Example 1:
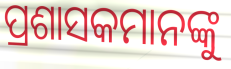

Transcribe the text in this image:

ପ୍ରଶାସକମାନଙ୍କୁ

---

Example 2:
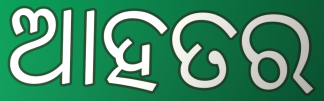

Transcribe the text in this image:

ଆହତର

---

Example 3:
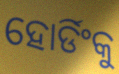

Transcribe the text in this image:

ହୋର୍ଡିଂକୁ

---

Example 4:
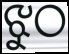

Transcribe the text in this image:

ଝୁଠ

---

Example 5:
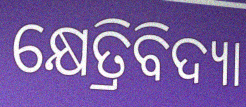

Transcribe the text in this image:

କ୍ଷେତ୍ରିବିଦ୍ୟା